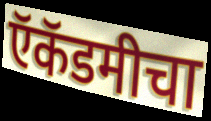
ऍकॅडमीचा